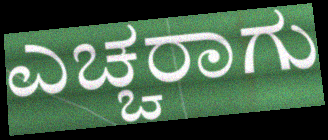
ಎಚ್ಚರಾಗು